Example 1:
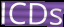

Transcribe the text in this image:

ICDs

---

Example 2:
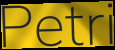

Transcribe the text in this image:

Petri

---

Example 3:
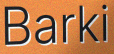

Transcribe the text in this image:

Barki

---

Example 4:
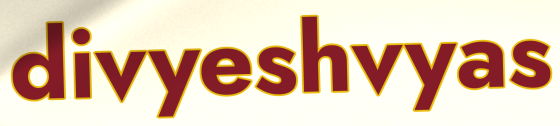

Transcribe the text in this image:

divyeshvyas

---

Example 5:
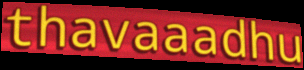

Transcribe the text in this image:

thavaaadhu